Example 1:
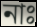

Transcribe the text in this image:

নাঃ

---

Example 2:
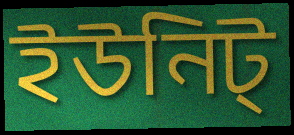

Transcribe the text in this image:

ইউনিট্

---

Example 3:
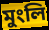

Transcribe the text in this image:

মুংলি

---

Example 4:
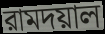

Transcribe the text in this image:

রামদয়াল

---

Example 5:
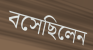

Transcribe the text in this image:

বসেছিলেন